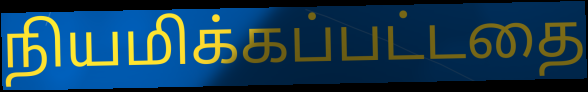
நியமிக்கப்பட்டதை